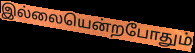
இல்லையென்றபோதும்